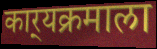
कार्यक्रमाला